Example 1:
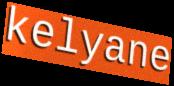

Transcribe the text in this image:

kelyane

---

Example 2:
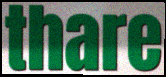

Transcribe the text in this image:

thare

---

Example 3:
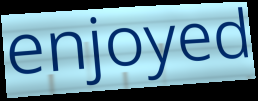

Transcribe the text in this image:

enjoyed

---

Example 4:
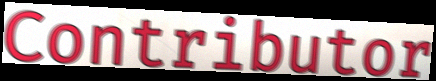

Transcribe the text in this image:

Contributor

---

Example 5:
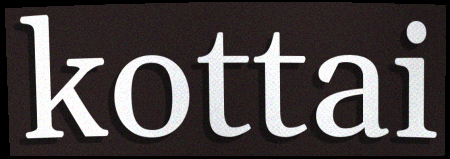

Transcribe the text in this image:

kottai